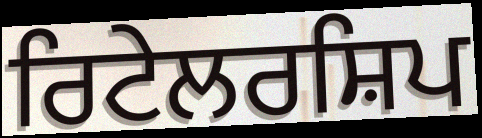
ਰਿਟੇਲਰਸ਼ਿਪ